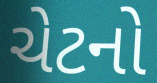
ચેટનો